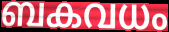
ബകവധം